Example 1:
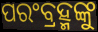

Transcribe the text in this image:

ପରଂବ୍ରହ୍ମଙ୍କୁ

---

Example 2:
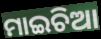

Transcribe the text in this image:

ମାଇଚିଆ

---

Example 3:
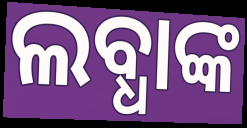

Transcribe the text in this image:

ଲବ୍ଧାଙ୍କ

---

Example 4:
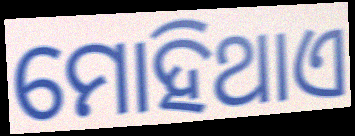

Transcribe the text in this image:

ମୋହିଥାଏ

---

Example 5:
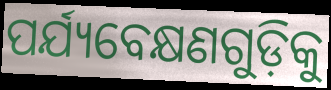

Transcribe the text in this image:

ପର୍ଯ୍ୟବେକ୍ଷଣଗୁଡ଼ିକୁ